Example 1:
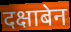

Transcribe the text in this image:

दक्षाबेन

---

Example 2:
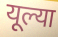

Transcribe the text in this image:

यूल्या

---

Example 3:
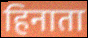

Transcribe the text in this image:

हिनाता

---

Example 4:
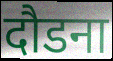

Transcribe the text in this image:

दौडना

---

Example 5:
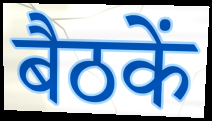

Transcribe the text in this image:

बैठकें